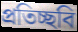
প্রতিচ্ছবি